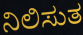
ನಿಲಿಸುತ